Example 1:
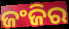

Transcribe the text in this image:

ଜଂଜିର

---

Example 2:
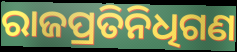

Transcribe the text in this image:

ରାଜପ୍ରତିନିଧିଗଣ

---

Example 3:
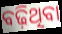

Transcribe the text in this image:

ବଢ଼ିଥିବା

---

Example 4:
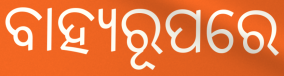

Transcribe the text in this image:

ବାହ୍ୟରୂପରେ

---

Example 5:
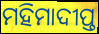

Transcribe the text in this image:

ମହିମାଦୀପ୍ତ